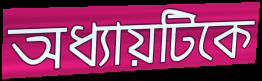
অধ্যায়টিকে